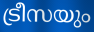
ട്രീസയും